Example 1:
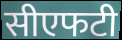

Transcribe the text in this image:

सीएफटी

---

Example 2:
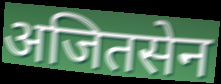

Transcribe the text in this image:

अजितसेन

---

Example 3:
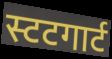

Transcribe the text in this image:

स्टटगार्ट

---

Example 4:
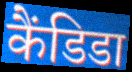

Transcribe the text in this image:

कैंडिडा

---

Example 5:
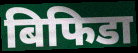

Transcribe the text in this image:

बिफिडा